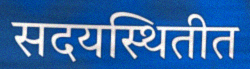
सदयस्थितीत